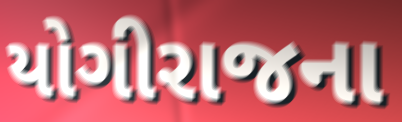
યોગીરાજના